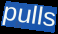
pulls